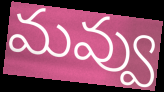
మవ్వు